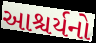
આશ્ચર્યનો